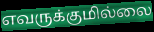
எவருக்குமில்லை